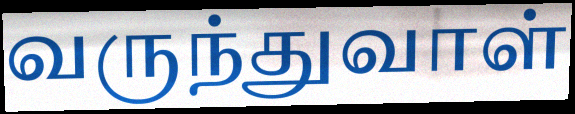
வருந்துவாள்